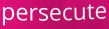
persecute